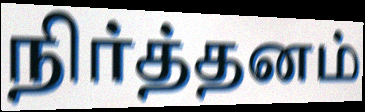
நிர்த்தனம்